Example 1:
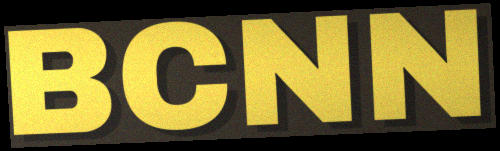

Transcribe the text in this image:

BCNN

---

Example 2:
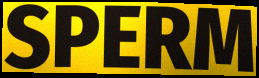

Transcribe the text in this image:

SPERM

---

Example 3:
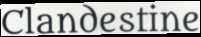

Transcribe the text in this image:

Clandestine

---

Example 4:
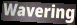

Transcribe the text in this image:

Wavering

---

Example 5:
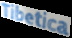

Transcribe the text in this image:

Tibetica